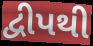
દ્વીપથી